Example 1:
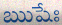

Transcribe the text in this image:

ఋషేః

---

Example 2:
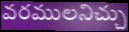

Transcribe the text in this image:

వరములనిచ్చు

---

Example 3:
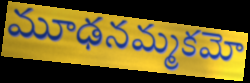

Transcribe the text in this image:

మూఢనమ్మకమో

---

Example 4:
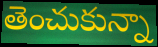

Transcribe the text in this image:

తెంచుకున్నా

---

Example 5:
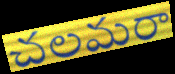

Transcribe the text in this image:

చలమరా